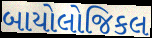
બાયોલોજિકલ